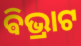
ଵିଭ୍ରାଟ